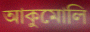
আকুমোলি